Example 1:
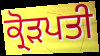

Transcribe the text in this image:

ਕ੍ਰੋੜਪਤੀ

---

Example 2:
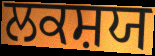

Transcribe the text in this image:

ਲਕਸ਼ਯ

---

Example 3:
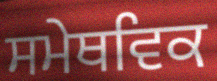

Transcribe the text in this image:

ਸਮੇਥਵਿਕ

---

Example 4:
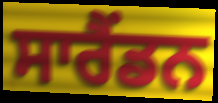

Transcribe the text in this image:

ਸਾਰੈਂਡਨ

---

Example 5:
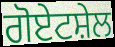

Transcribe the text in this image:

ਗੋਏਟਸ਼ੇਲ